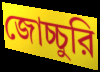
জোচ্চুরি